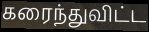
கரைந்துவிட்ட